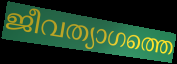
ജീവത്യാഗത്തെ